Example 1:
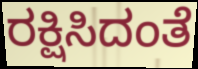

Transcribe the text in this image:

ರಕ್ಷಿಸಿದಂತೆ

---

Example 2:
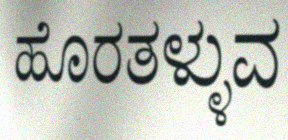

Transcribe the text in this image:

ಹೊರತಳ್ಳುವ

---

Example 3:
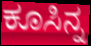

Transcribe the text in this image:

ಕೂಸಿನ್ನ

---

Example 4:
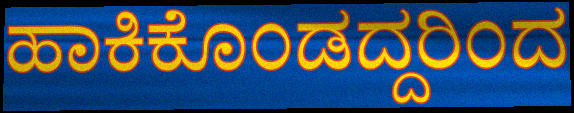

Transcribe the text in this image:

ಹಾಕಿಕೊಂಡದ್ದರಿಂದ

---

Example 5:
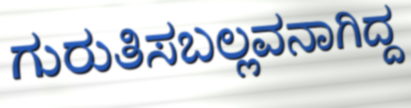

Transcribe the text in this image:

ಗುರುತಿಸಬಲ್ಲವನಾಗಿದ್ದ